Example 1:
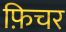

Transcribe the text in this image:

फ़िचर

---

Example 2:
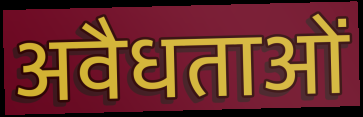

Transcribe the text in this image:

अवैधताओं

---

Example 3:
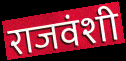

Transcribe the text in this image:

राजवंशी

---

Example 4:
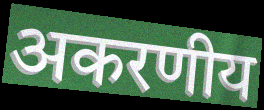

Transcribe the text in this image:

अकरणीय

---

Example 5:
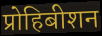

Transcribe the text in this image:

प्रोहिबीशन